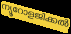
ന്യൂറോളജിക്കൽ